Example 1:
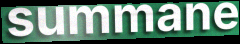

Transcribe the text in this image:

summane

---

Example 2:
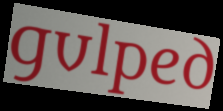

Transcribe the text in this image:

gulped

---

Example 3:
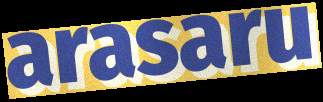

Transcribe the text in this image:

arasaru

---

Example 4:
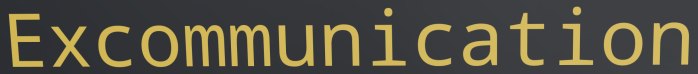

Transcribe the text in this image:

Excommunication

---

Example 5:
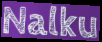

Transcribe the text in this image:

Nalku